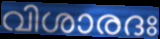
വിശാരദഃ